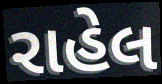
રાહેલ